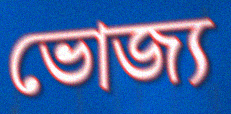
ভোজ্য